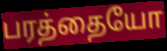
பரத்தையோ